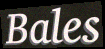
Bales